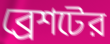
ব্রেশটের